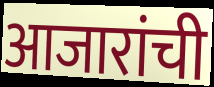
आजारांची